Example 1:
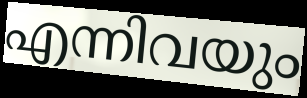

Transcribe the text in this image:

എന്നിവയും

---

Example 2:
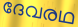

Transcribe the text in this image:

ദേവരഥ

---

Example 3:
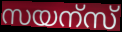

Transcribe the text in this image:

സയന്സ്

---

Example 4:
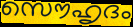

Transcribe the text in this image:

സൌഹൃദം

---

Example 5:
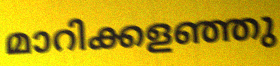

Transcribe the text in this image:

മാറിക്കളഞ്ഞു